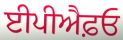
ਈਪੀਐਫ਼ਓ